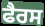
ਫੈਰਸ